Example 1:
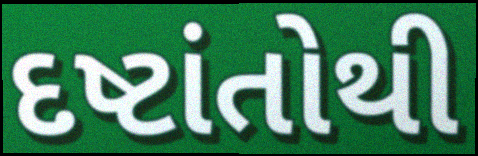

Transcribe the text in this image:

દષ્ટાંતોથી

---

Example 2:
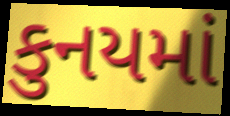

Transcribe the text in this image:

કુનયમાં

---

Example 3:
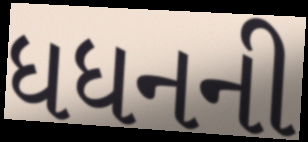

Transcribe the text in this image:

ધધનની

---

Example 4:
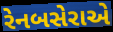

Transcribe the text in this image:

રેનબસેરાએ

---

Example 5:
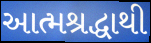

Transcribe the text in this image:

આત્મશ્રદ્ધાથી